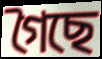
গৈছে